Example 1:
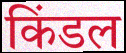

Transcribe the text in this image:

किंडल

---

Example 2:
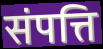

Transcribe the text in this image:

संपत्ति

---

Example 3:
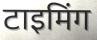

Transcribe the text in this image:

टाइमिंग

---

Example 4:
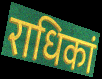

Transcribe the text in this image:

राधिकां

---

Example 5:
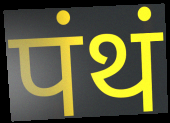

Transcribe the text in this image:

पंथं